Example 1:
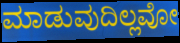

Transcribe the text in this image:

ಮಾಡುವುದಿಲ್ಲವೋ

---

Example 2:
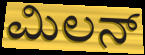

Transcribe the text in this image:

ಮಿಲನ್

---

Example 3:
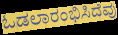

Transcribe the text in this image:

ಓಡಲಾರಂಭಿಸಿದೆವು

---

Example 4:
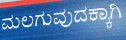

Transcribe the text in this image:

ಮಲಗುವುದಕ್ಕಾಗಿ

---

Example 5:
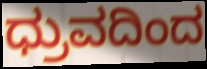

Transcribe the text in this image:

ಧ್ರುವದಿಂದ